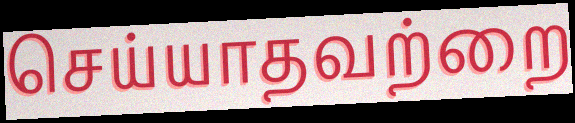
செய்யாதவற்றை